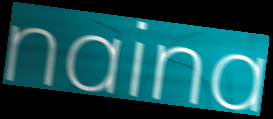
naina